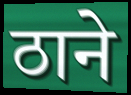
ठाने